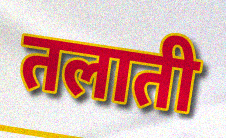
तलाती